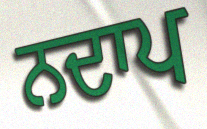
ਨਦਾਪ